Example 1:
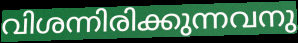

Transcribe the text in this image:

വിശന്നിരിക്കുന്നവനു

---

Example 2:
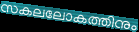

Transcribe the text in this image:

സകലലോകത്തിനും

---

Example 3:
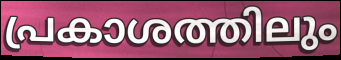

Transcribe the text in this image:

പ്രകാശത്തിലും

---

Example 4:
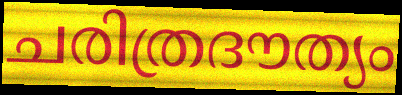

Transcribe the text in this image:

ചരിത്രദൗത്യം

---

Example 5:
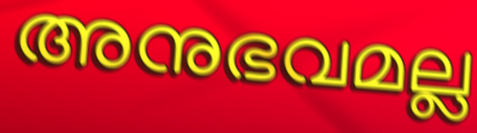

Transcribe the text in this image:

അനുഭവമല്ല